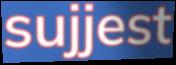
sujjest